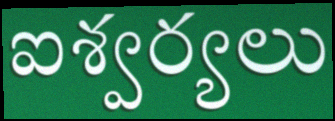
ఐశ్వర్యలు